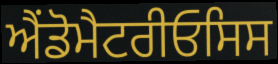
ਐਂਡੋਮੈਟਰੀਓਸਿਸ